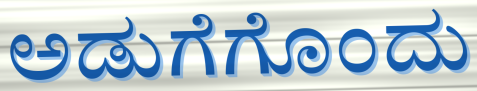
ಅಡುಗೆಗೊಂದು